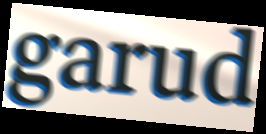
garud